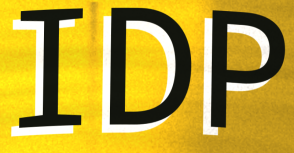
IDP